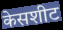
केसशीट